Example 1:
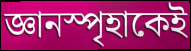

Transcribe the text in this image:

জ্ঞানস্পৃহাকেই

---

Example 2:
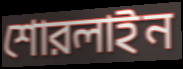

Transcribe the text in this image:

শোরলাইন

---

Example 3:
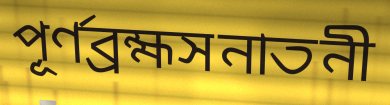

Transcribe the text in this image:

পূর্ণব্রহ্মসনাতনী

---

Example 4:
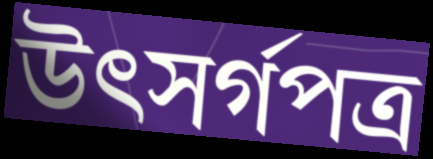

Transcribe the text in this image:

উৎসর্গপত্র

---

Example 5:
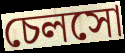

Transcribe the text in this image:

চেলসো